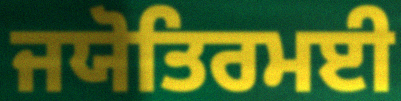
ਜਯੋਤਿਰਮਈ